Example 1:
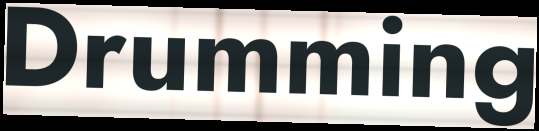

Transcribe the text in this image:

Drumming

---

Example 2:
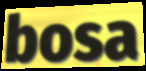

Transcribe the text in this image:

bosa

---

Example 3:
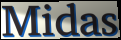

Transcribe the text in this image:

Midas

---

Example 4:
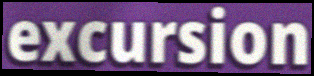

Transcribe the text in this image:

excursion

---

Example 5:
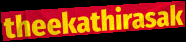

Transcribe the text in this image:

theekathirasak